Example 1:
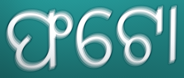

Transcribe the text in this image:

ଫଟୋ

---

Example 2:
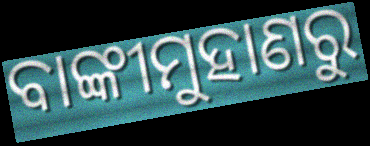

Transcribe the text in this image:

ବାଙ୍କୀମୁହାଣରୁ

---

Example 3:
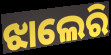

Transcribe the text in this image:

ଝାଲେରି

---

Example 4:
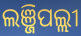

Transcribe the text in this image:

ଲଞ୍ଜିପଲ୍ଲୀ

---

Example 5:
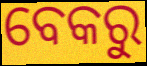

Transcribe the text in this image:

ବେକରୁ